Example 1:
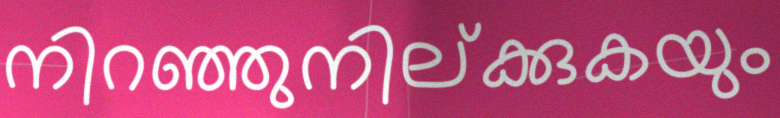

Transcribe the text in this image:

നിറഞ്ഞുനില്ക്കുകയും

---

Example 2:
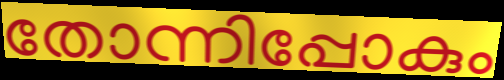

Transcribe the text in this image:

തോന്നിപ്പോകും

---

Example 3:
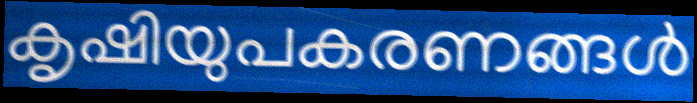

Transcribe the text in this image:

കൃഷിയുപകരണങ്ങൾ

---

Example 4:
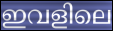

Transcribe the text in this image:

ഇവളിലെ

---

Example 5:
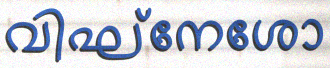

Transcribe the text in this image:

വിഘ്നേശോ